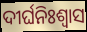
ଦୀର୍ଘନିଃଶ୍ବାସ